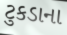
ટુકડાના